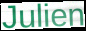
Julien